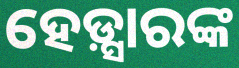
ହେଡ଼୍ସାରଙ୍କ